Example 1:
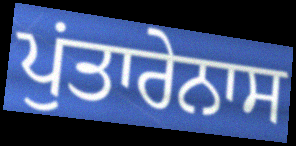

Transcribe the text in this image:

ਪੁਂਤਾਰੇਨਾਸ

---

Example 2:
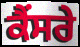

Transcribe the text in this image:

ਕੈਂਸਰੇ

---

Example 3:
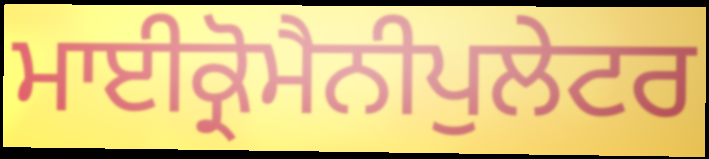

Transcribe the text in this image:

ਮਾਈਕ੍ਰੋਮੈਨੀਪੁਲੇਟਰ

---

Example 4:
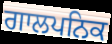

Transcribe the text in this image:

ਗਾਲਪਨਿਕ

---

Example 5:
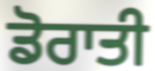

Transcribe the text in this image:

ਡੋਰਾਤੀ